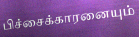
பிச்சைக்காரனையும்